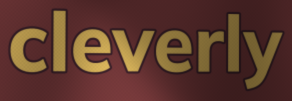
cleverly